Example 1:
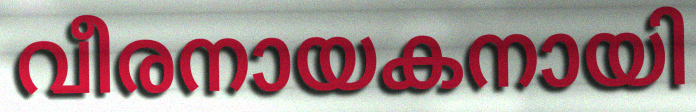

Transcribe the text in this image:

വീരനായകനായി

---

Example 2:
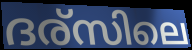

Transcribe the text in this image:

ദര്സിലെ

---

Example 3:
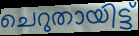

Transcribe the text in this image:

ചെറുതായിട്ട്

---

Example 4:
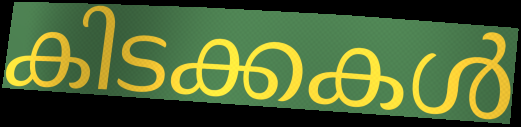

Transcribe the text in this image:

കിടക്കകൾ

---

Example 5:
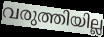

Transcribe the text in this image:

വരുത്തിയില്ല